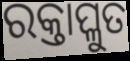
ରକ୍ତାପ୍ଳୁତ